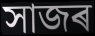
সাজৰ